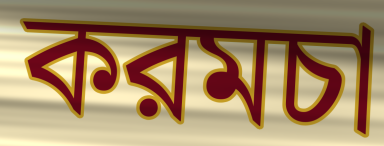
করমচা